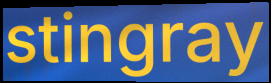
stingray